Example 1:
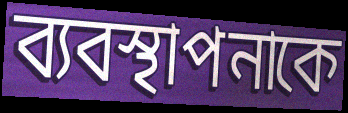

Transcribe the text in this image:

ব্যবস্থাপনাকে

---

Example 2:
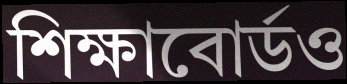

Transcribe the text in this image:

শিক্ষাবোর্ডও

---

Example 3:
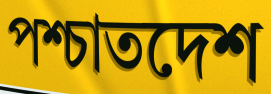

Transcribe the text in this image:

পশ্চাতদেশ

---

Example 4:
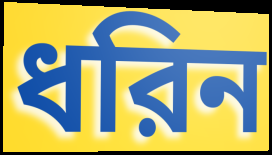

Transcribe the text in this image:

ধরিন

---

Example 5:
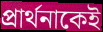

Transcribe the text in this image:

প্রার্থনাকেই